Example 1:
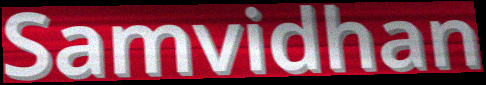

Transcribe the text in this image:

Samvidhan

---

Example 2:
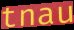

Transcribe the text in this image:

tnau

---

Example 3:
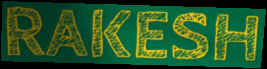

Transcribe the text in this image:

RAKESH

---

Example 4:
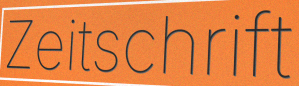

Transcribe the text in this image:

Zeitschrift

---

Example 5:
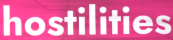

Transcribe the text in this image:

hostilities